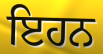
ਇਹਨ